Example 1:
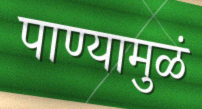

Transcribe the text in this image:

पाण्यामुळं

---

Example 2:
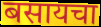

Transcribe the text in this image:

बसायचा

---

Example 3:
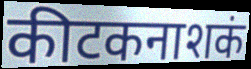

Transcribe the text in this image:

कीटकनाशकं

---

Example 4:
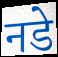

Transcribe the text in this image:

नडे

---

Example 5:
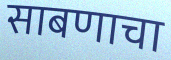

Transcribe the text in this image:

साबणाचा